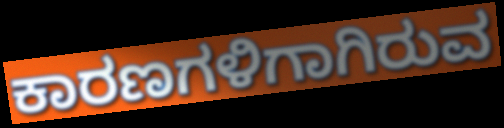
ಕಾರಣಗಳಿಗಾಗಿರುವ